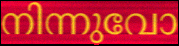
നിന്നുവോ